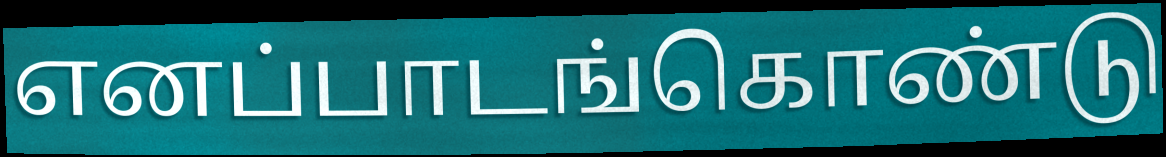
எனப்பாடங்கொண்டு